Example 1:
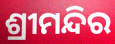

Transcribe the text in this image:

ଶ୍ରୀମନ୍ଦିର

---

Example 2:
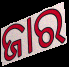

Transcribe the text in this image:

ଜାର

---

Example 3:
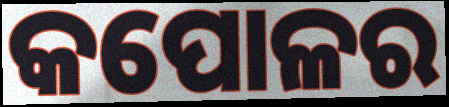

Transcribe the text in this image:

କପୋଳର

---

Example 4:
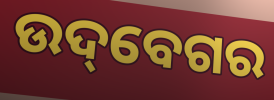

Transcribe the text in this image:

ଉଦ୍‌ବେଗର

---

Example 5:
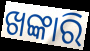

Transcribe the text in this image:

ଖଙ୍କାରି